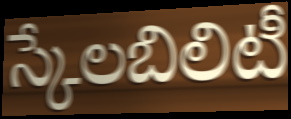
స్కేలబిలిటీ